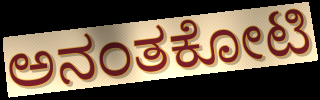
ಅನಂತಕೋಟಿ